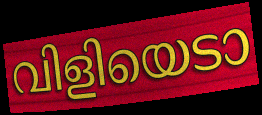
വിളിയെടാ